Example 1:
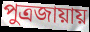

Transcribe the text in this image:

পুত্রজায়ায়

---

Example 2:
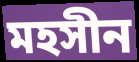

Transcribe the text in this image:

মহসীন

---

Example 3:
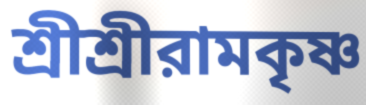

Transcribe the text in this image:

শ্রীশ্রীরামকৃষ্ণ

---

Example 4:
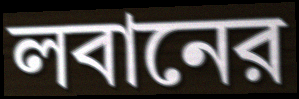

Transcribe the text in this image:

লবানের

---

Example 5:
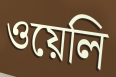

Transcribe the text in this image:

ওয়েলি